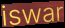
iswar